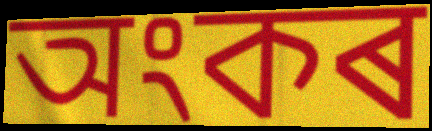
অংকৰ